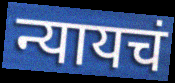
न्यायचं